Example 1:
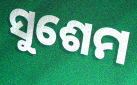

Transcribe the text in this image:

ସୁଶେମ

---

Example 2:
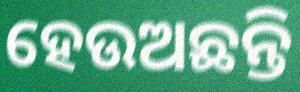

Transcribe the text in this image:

ହେଉଅଛନ୍ତି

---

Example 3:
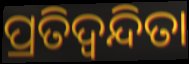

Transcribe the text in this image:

ପ୍ରତିଦ୍ୱନ୍ଦିତା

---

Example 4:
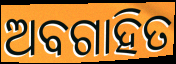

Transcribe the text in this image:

ଅବଗାହିତ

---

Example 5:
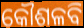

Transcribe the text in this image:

କୌଶଳବି